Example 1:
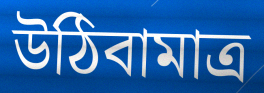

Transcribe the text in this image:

উঠিবামাত্র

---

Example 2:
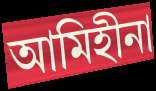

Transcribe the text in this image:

আমিহীনা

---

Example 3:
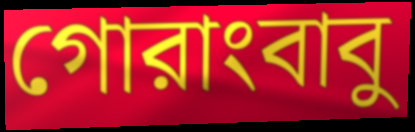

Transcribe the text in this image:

গোরাংবাবু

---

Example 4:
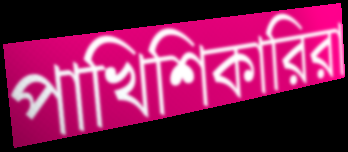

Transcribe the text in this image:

পাখিশিকারিরা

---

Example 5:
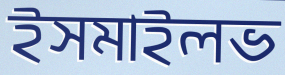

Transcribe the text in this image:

ইসমাইলভ